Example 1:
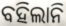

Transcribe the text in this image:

ବହିଲାନି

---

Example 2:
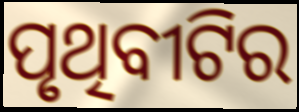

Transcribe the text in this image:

ପୃଥିବୀଟିର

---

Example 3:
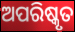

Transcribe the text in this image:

ଅପରିଷ୍କୃତ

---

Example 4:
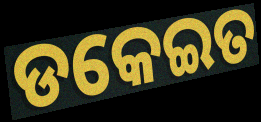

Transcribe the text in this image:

ଡକେଇତ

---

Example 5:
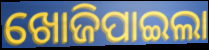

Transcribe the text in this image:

ଖୋଜିପାଇଲା